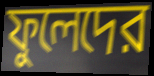
ফুলেদের